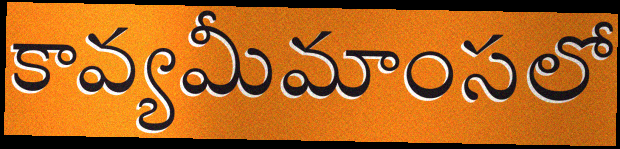
కావ్యమీమాంసలో